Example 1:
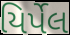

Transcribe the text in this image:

યિર્પેલ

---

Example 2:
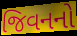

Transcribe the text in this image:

જિવનનો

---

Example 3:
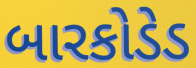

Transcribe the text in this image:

બારકોડેડ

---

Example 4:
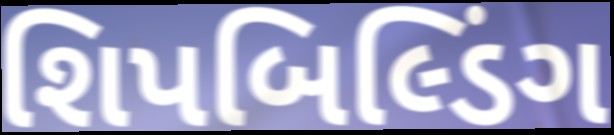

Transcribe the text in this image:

શિપબિલ્ડિંગ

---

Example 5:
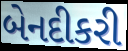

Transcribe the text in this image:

બેનદીકરી